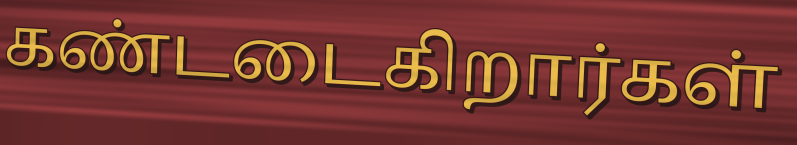
கண்டடைகிறார்கள்